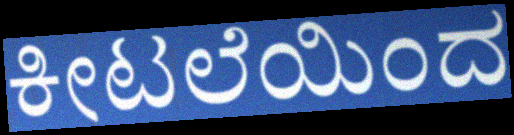
ಕೀಟಲೆಯಿಂದ